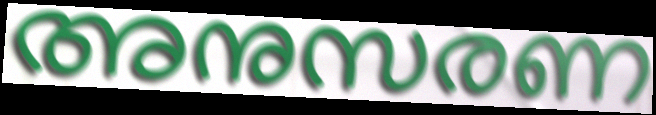
അനുസരണ